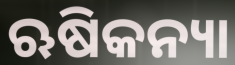
ଋଷିକନ୍ୟା